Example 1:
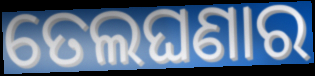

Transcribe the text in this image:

ତେଲଘଣାର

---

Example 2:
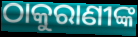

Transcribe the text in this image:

ଠାକୁରାଣୀଙ୍କ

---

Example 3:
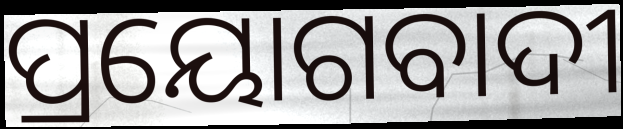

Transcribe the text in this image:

ପ୍ରୟୋଗବାଦୀ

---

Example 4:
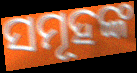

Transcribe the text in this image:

ସମୂହଙ୍କ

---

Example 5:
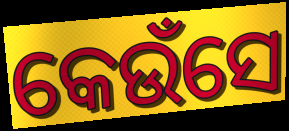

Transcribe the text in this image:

କେଉଁସେ